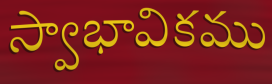
స్వాభావికము